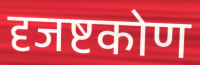
दृजष्टकोण